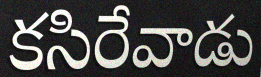
కసిరేవాడు